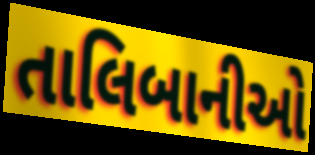
તાલિબાનીઓ